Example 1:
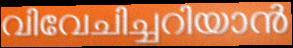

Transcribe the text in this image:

വിവേചിച്ചറിയാൻ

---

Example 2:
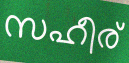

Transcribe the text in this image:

സഹീര്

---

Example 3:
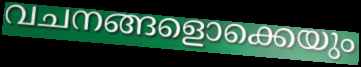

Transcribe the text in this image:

വചനങ്ങളൊക്കെയും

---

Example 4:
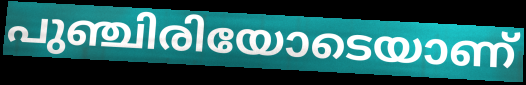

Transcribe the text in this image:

പുഞ്ചിരിയോടെയാണ്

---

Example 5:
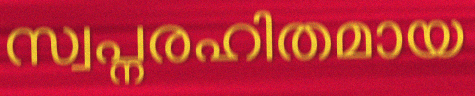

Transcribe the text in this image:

സ്വപ്നരഹിതമായ